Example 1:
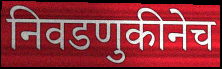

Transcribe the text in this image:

निवडणुकीनेच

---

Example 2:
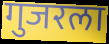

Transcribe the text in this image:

गुजरला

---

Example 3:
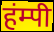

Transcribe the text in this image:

हंम्पी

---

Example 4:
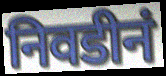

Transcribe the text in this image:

निवडीनं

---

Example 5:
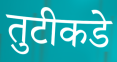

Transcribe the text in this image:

तुटीकडे